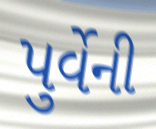
પુર્વેની